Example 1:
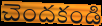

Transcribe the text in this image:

చెందకండి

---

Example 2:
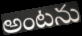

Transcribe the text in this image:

అంటను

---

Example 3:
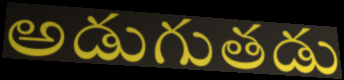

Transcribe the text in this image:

అడుగుతడు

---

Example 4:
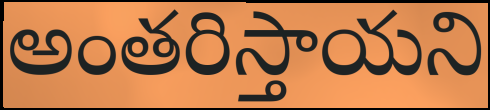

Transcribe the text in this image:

అంతరిస్తాయని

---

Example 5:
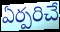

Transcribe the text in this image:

ఏర్పరిచే